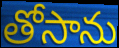
తోసాను